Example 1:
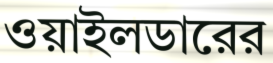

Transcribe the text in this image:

ওয়াইলডারের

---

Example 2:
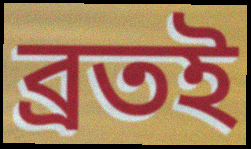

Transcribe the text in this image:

ব্রতই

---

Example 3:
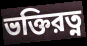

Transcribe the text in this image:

ভক্তিরত্ন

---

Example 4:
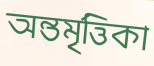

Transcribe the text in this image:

অন্তর্মৃত্তিকা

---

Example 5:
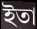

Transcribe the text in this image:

ইতা